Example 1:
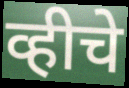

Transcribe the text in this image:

व्हीचे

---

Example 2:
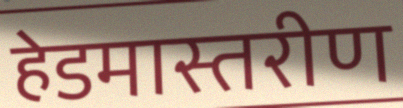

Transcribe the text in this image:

हेडमास्तरीण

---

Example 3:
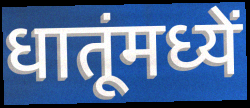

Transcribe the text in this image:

धातूंमध्यें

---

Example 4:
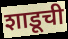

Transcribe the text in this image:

शाडूची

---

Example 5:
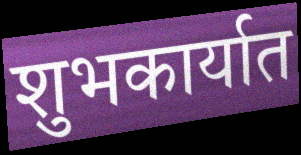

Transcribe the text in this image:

शुभकार्यात